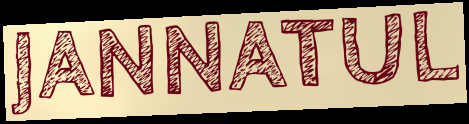
JANNATUL